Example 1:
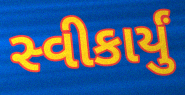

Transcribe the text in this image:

સ્વીકાર્યું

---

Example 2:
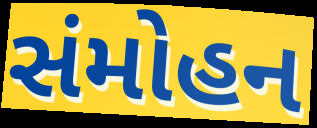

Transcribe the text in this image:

સંમોહન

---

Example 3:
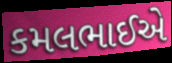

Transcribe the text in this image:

કમલભાઈએ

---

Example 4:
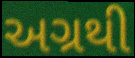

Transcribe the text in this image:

અગ્રથી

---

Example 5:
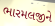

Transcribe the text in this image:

ભારમલજીને